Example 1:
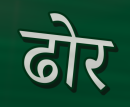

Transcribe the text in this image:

ढोर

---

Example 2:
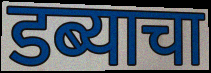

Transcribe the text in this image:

डब्याचा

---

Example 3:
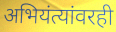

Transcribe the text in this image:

अभियंत्यांवरही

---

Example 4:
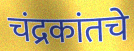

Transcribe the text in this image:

चंद्रकांतचे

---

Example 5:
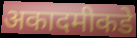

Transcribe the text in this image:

अकादमीकडे